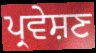
ਪ੍ਰਵੇਸ਼ਣ